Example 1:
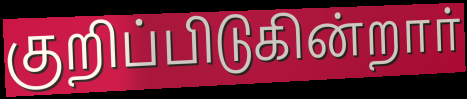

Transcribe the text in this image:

குறிப்பிடுகின்றார்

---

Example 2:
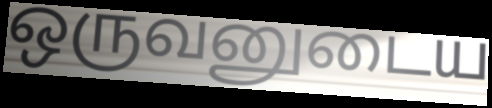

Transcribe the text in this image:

ஒருவனுடைய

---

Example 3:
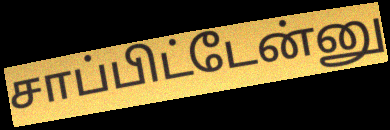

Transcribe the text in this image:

சாப்பிட்டேன்னு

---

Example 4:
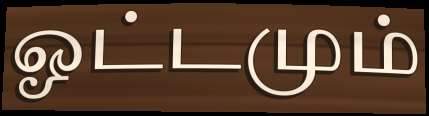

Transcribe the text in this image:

ஓட்டமும்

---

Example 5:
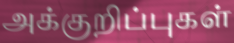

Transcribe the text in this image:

அக்குறிப்புகள்